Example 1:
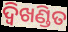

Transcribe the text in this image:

ଦ୍ଵିଖଣ୍ଡିତ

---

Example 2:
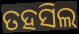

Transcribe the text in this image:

ତହସିଲ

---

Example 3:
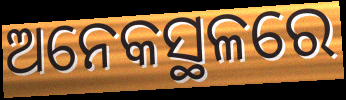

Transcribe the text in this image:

ଅନେକସ୍ଥଳରେ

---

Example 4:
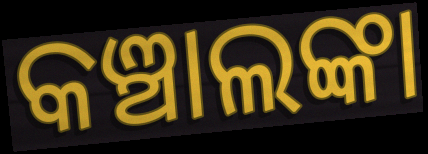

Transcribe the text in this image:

କଞ୍ଚାଲଙ୍କା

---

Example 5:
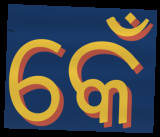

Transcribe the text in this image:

କେଁ